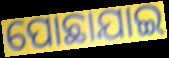
ପୋଛାଯାଇ